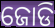
ଜୋଡି